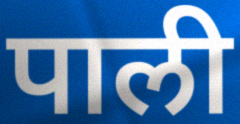
पाली